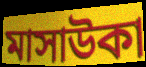
মাসাউকা